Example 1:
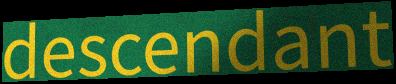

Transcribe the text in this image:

descendant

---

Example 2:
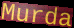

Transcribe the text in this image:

Murda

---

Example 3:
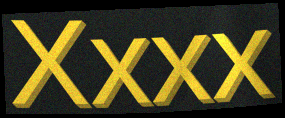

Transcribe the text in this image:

Xxxx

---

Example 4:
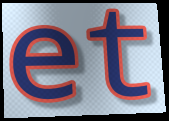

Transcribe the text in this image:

et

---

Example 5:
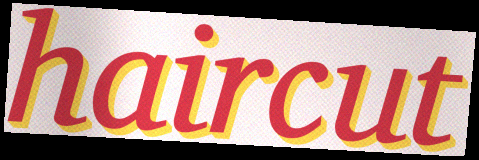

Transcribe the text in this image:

haircut